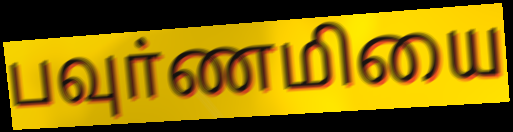
பவுர்ணமியை